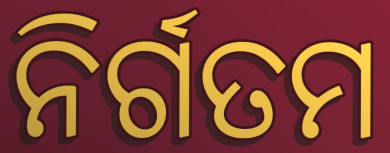
ନିର୍ଗତମ